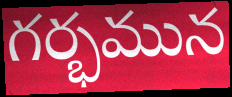
గర్భమున